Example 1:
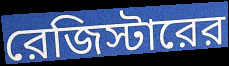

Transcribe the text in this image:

রেজিস্টারের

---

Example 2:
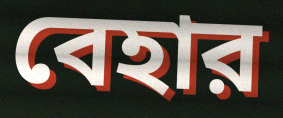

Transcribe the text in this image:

বেহার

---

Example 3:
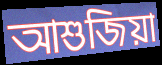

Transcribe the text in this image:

আশুজিয়া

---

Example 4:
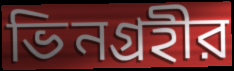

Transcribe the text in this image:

ভিনগ্রহীর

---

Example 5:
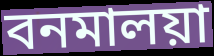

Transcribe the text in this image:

বনমালয়া